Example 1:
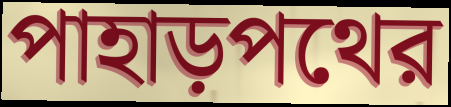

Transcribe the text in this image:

পাহাড়পথের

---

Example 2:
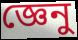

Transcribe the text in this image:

জ্ঞেনু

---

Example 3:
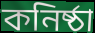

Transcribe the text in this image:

কনিষ্ঠা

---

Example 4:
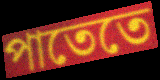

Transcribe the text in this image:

পাতেতে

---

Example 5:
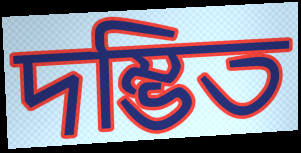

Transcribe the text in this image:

দম্ভিত